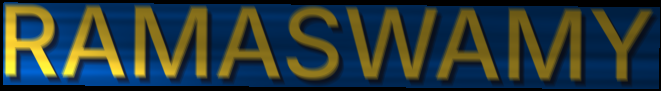
RAMASWAMY